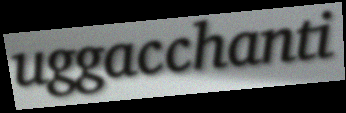
uggacchanti